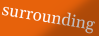
surrounding